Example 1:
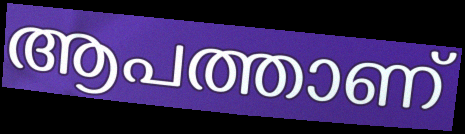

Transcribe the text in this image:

ആപത്താണ്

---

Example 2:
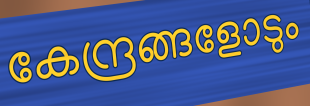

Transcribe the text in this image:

കേന്ദ്രങ്ങളോടും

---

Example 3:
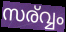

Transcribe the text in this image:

സര്വ്വം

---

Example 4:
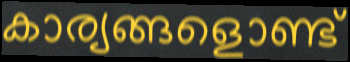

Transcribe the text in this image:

കാര്യങ്ങളൊണ്ട്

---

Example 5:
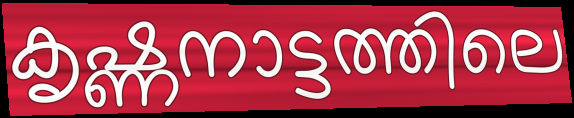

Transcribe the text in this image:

കൃഷ്ണനാട്ടത്തിലെ